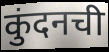
कुंदनची